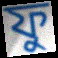
ফু